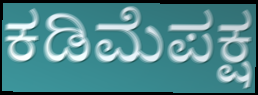
ಕಡಿಮೆಪಕ್ಷ